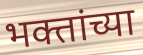
भक्तांच्या